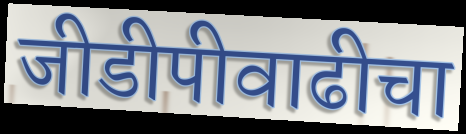
जीडीपीवाढीचा